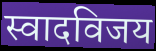
स्वादविजय